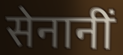
सेनानीं